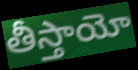
తీస్తాయో